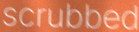
scrubbed